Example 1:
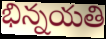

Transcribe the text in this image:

భిన్నయతి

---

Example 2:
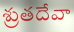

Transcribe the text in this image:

శ్రుతదేవా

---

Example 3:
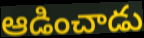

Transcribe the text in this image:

ఆడించాడు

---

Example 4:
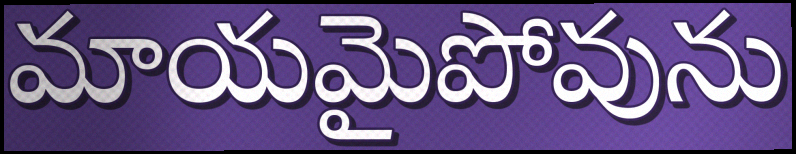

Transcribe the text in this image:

మాయమైపోవును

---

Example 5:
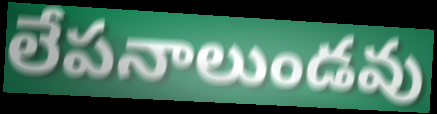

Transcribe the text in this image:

లేపనాలుండవు